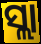
ସ୍ଲା